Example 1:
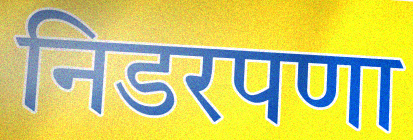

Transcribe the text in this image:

निडरपणा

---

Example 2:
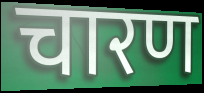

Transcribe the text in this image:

चारण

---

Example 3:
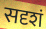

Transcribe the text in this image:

सदृशं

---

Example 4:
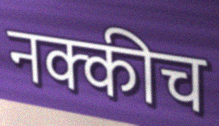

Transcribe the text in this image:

नक्‍कीच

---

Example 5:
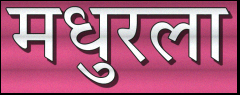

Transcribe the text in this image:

मधुरला